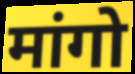
मांगो